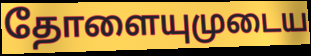
தோளையுமுடைய